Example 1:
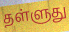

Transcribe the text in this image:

தள்ளுது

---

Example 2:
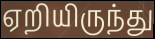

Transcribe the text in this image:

ஏறியிருந்து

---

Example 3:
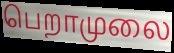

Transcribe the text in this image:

பெறாமுலை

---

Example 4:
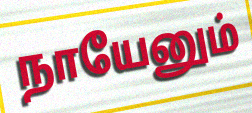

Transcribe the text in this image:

நாயேனும்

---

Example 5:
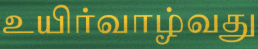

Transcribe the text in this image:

உயிர்வாழ்வது